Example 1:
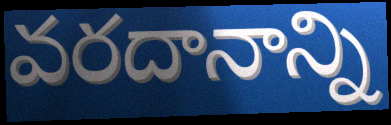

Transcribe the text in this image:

వరదానాన్ని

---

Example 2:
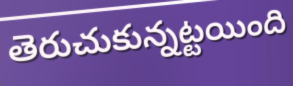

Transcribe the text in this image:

తెరుచుకున్నట్టయింది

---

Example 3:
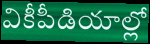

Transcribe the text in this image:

వికీపీడియాల్లో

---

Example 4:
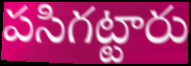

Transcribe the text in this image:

పసిగట్టారు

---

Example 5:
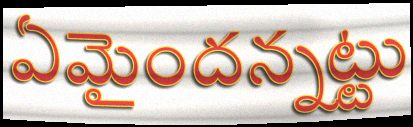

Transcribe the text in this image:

ఏమైందన్నట్టు